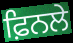
ਫ਼ਿਨਲੇ